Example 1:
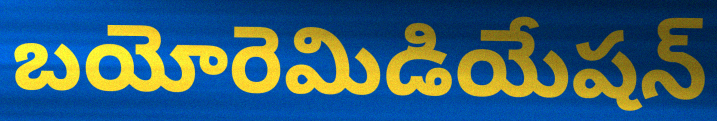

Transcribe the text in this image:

బయోరెమిడియేషన్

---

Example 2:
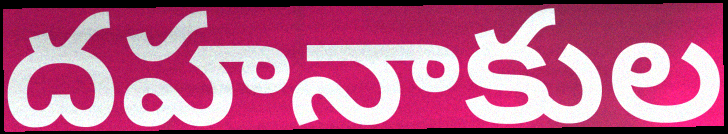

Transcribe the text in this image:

దహనాకుల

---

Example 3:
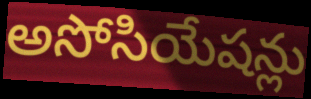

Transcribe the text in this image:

అసోసియేషన్లు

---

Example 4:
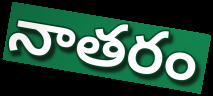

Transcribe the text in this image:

నాతరం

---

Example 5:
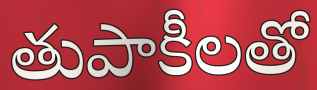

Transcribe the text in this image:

తుపాకీలతో